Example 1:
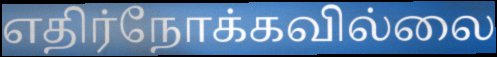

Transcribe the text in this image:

எதிர்நோக்கவில்லை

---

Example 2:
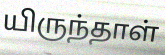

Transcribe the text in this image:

யிருந்தாள்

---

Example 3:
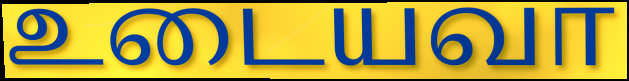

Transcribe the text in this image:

உடையவா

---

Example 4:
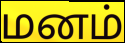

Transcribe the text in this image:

மனம்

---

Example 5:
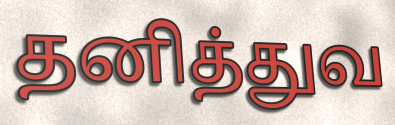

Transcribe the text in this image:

தனித்துவ